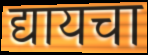
द्यायचा